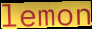
lemon